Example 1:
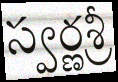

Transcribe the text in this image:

స్వర్ణశ్రీ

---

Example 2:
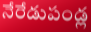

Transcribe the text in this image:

నేరేడుపండ్ల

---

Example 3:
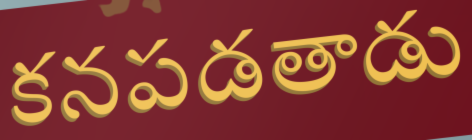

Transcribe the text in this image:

కనపడతాడు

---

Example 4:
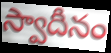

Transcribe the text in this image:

స్వాదీనం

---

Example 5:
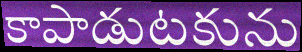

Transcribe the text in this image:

కాపాడుటకును